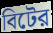
বিটের